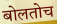
बोलतोच